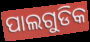
ପାଲଗୁଡିକ